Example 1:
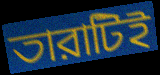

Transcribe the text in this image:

তারাটিই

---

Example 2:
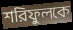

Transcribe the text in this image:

শরিফুলকে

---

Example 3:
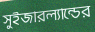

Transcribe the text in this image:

সুইজারল্যান্ডের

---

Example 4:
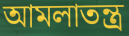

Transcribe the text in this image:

আমলাতন্ত্র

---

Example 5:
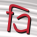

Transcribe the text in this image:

এি